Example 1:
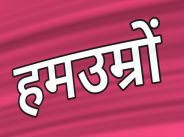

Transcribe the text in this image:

हमउम्रों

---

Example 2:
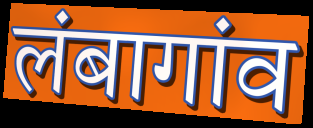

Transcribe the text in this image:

लंबागांव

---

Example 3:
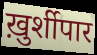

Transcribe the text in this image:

ख़ुर्शीपार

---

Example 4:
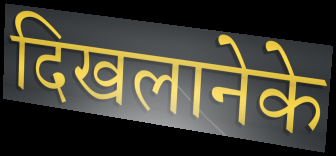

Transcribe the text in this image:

दिखलानेके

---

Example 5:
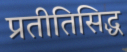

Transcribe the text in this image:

प्रतीतिसिद्ध